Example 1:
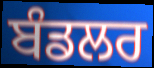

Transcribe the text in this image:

ਬੰਡਲਰ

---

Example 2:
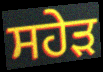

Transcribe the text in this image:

ਸਹੇੜ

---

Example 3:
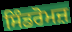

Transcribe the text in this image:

ਸਿੰਡਰੋਮਜ਼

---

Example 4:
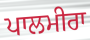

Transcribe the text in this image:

ਪਾਲਮੀਰਾ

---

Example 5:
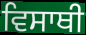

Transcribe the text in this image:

ਵਿਸਾਥੀ